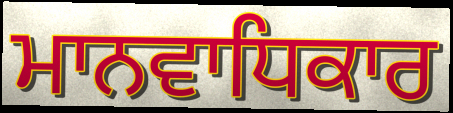
ਮਾਨਵਾਧਿਕਾਰ